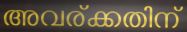
അവര്ക്കതിന്